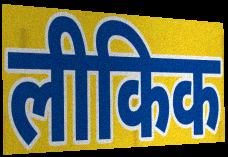
लीकिक